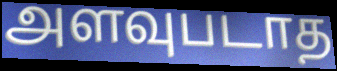
அளவுபடாத